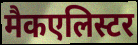
मैकएलिस्टर